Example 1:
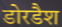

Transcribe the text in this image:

डोरडैश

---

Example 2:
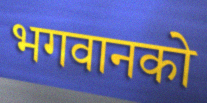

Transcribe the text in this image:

भगवानको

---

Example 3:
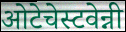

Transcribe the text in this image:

ओटेचेस्टवेन्नी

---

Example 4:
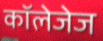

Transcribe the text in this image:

कॉलेजेज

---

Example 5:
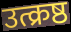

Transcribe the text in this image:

उत्क्रष्ठ